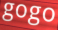
gogo